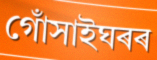
গোঁসাইঘৰৰ